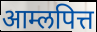
आम्लपित्त